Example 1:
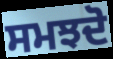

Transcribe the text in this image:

ਸਮਝਦੋ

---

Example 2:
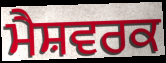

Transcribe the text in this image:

ਮੈਸ਼ਵਰਕ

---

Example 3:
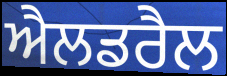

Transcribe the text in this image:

ਐਲਡਰੈਲ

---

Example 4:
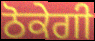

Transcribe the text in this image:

ਠੋਕੇਗੀ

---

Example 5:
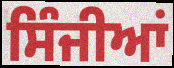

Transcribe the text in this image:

ਸਿੰਜੀਆਂ